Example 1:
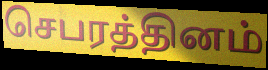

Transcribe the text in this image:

செபரத்தினம்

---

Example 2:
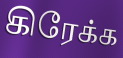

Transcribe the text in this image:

கிரேக்க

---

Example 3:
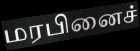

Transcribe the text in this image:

மரபினைச்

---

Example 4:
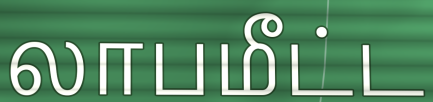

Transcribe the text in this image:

லாபமீட்ட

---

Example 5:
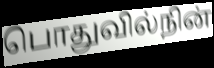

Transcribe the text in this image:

பொதுவில்நின்